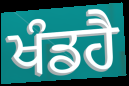
ਖੰਡਹੈ